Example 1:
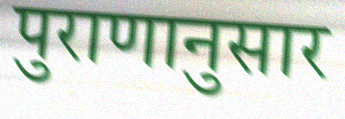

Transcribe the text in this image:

पुराणानुसार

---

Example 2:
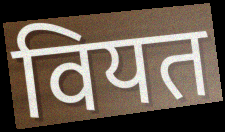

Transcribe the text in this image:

वियत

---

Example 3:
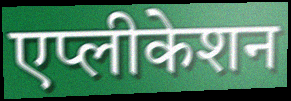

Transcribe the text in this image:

एप्‍लीकेशन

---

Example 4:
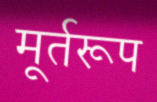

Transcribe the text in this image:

मूर्तरूप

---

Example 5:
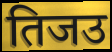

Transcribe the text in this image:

तिजउ